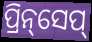
ପ୍ରିନ୍‌ସେପ୍